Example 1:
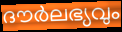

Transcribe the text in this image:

ദൗർലഭ്യവും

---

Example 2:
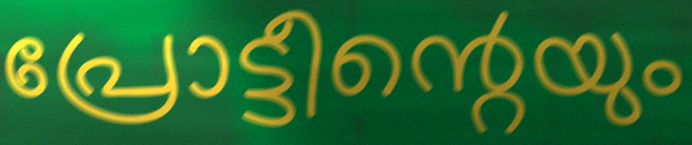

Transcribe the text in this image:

പ്രോട്ടീന്റെയും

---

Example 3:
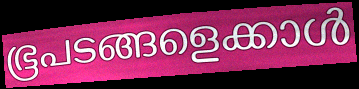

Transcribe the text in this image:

ഭൂപടങ്ങളെക്കാൾ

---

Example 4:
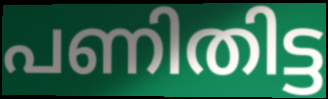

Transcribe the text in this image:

പണിതിട്ട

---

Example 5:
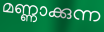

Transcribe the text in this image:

മണ്ണാക്കുന്ന